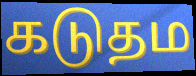
கடுதம